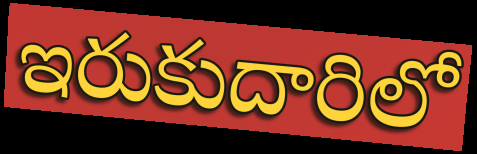
ఇరుకుదారిలో